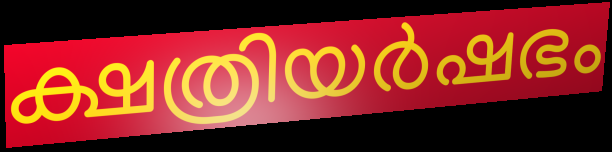
ക്ഷത്രിയർഷഭം